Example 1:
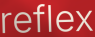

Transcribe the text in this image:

reflex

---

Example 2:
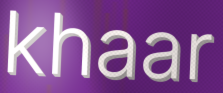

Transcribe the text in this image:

khaar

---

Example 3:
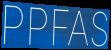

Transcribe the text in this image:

PPFAS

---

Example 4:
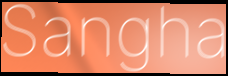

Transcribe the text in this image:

Sangha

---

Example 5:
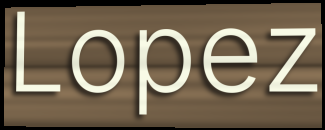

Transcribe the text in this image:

Lopez